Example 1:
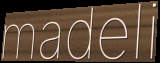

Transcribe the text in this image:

madeli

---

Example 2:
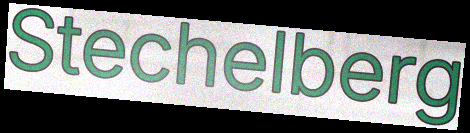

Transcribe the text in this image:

Stechelberg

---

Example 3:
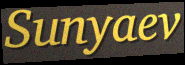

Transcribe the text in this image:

Sunyaev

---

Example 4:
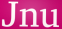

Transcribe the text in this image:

Jnu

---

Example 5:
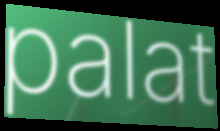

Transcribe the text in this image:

palat